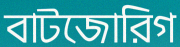
বাটজোরিগ